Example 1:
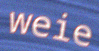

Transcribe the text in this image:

weie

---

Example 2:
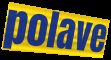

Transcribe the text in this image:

polave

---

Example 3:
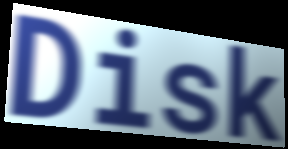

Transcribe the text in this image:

Disk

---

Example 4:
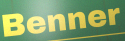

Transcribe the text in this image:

Benner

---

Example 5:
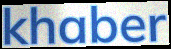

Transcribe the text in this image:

khaber